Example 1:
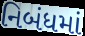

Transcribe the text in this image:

નિબંધમાં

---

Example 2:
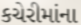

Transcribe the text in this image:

કચેરીમાંના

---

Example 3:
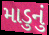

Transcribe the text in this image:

માડુનું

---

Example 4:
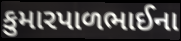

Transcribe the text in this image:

કુમારપાળભાઈના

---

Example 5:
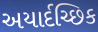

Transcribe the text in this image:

અયાર્દચ્છિક